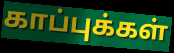
காப்புக்கள்